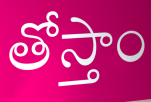
తోస్తాం